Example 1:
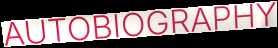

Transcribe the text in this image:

AUTOBIOGRAPHY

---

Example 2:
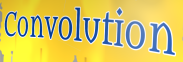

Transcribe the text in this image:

Convolution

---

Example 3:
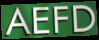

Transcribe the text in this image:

AEFD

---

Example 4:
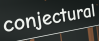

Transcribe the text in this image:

conjectural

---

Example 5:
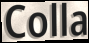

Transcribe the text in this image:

Colla